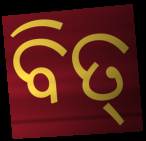
ବିତ୍